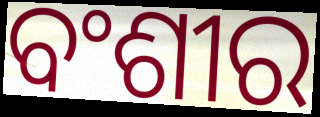
ବଂଶୀର